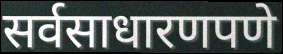
सर्वसाधारणपणे